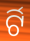
ର୍ଟି